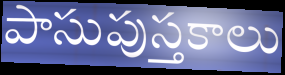
పాసుపుస్తకాలు